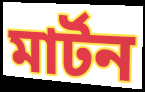
মার্টন